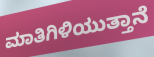
ಮಾತಿಗಿಳಿಯುತ್ತಾನೆ